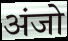
अंजो